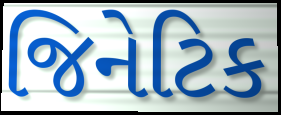
જિનેટિક